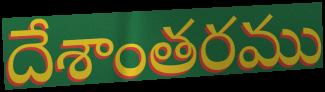
దేశాంతరము